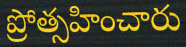
ప్రోత్సహించారు